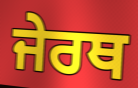
ਜੇਰਥ